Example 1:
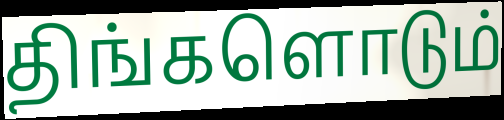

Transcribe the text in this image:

திங்களொடும்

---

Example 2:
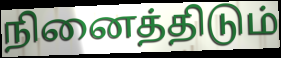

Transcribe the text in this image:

நினைத்திடும்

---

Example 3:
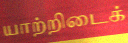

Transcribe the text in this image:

யாற்றிடைக்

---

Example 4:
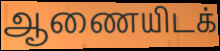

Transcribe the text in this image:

ஆணையிடக்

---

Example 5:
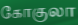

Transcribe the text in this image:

கோகுலா